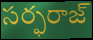
సర్ఫరాజ్